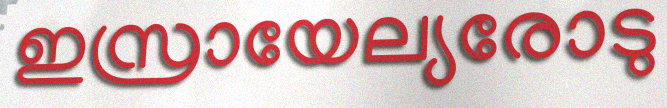
ഇസ്രായേല്യരോടു